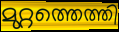
മുറ്റത്തെത്തി